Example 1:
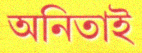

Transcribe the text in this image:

অনিতাই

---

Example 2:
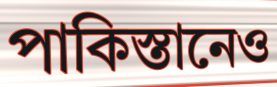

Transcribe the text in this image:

পাকিস্তানেও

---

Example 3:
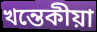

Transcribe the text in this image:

খন্তেকীয়া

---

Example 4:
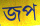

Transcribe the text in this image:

জপ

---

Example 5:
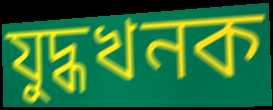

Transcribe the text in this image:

যুদ্ধখনক